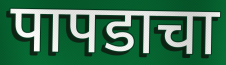
पापडाचा